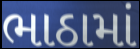
ભાઠામાં